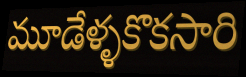
మూడేళ్ళకొకసారి